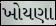
ખોયણા